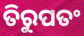
ତିରୁପତଂ